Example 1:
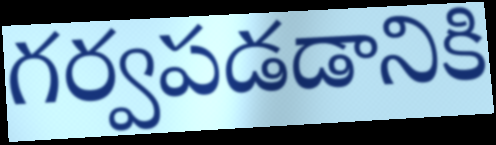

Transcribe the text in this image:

గర్వపడడానికి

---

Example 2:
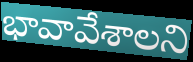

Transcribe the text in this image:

భావావేశాలని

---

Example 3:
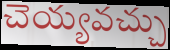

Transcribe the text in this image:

చెయ్యవచ్చు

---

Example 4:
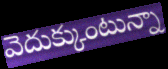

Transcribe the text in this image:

వెదుక్కుంటున్నా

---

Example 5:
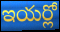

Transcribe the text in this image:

ఇయర్లో